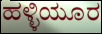
ಹಳ್ಳಿಯೂರ